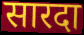
सारदा